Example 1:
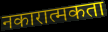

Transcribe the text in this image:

नकारात्मकता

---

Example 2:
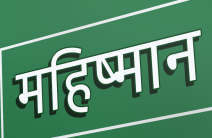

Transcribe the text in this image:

महिष्मान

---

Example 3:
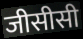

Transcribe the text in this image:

जीसीसी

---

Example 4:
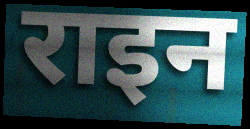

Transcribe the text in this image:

राइन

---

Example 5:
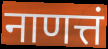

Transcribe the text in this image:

नाणत्तं